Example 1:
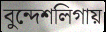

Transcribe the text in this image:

বুন্দেশলিগায়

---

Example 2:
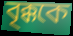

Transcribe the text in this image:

বৃক্ককে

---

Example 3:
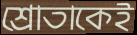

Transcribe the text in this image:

শ্রোতাকেই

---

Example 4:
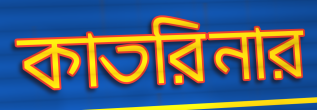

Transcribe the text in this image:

কাতরিনার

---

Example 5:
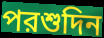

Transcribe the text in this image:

পরশুদিন